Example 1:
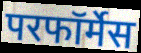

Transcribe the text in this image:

परफॉर्मेस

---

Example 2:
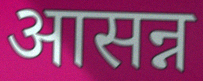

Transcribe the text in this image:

आसन्न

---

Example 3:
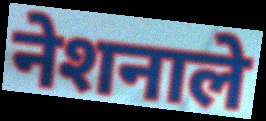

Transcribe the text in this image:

नेशनाले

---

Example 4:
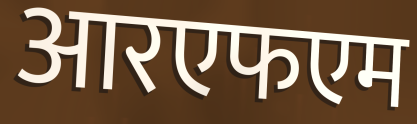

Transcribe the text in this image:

आरएफएम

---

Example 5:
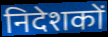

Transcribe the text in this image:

निदेशकों